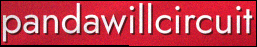
pandawillcircuit